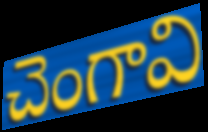
చెంగావి